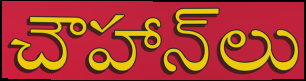
చౌహాన్‌లు